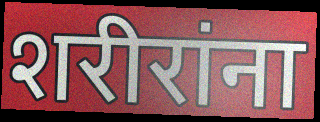
शरीरांना